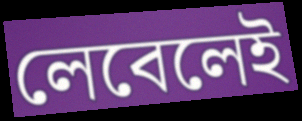
লেবেলেই